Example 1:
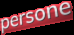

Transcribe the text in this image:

persone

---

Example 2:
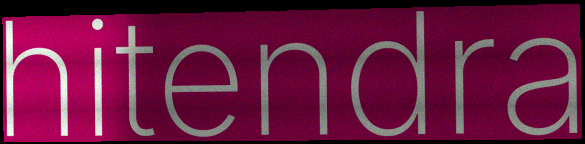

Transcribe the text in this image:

hitendra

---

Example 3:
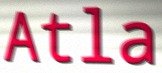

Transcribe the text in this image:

Atla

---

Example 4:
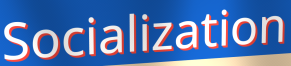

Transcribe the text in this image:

Socialization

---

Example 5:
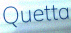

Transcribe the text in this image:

Quetta